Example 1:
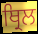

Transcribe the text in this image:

ਥ੍ਰਿਲ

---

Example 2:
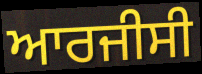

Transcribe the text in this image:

ਆਰਜੀਸੀ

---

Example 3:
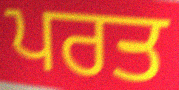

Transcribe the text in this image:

ਪਰਤ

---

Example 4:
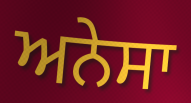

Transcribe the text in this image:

ਅਨੇਸਾ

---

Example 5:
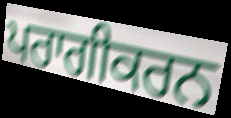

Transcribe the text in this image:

ਪਰਾਗੀਕਰਨ